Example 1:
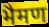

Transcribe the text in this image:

भैमण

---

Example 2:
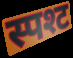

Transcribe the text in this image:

स्पश्ट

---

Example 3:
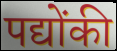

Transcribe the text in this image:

पद्योंकी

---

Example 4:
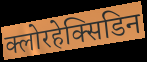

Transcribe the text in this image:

क्लोरहेक्सिडिन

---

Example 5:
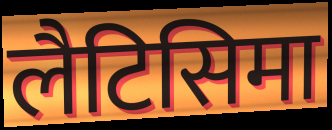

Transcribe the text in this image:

लैटिसिमा